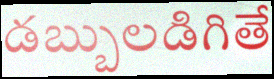
డబ్బులడిగితే